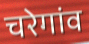
चरेगांव